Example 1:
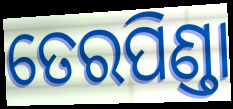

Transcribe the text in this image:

ତେରପିଣ୍ଡା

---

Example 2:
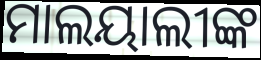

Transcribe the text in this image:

ମାଲୟାଲୀଙ୍କ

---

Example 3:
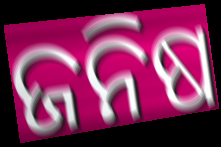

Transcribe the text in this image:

ଜନିଷ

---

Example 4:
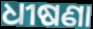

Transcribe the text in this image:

ଧୀଷଣା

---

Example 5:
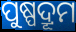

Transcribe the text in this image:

ପୁଷ୍ପଦ୍ରୂମ